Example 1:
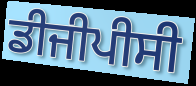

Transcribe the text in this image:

ਡੀਜੀਪੀਸੀ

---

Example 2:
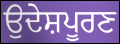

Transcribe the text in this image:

ਉਦੇਸ਼ਪੂਰਣ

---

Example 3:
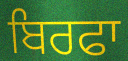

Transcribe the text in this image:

ਬਿਰਫਾ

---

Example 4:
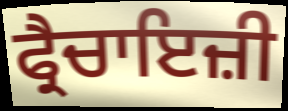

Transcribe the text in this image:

ਫ੍ਰੈਚਾਇਜ਼ੀ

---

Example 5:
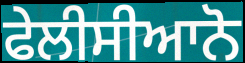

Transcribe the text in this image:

ਫੇਲੀਸੀਆਨੋ